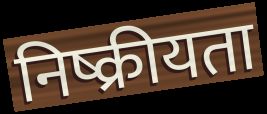
निष्क्रीयता